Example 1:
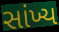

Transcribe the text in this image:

સાંખ્ય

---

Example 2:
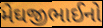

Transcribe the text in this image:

મેઘજીભાઈનો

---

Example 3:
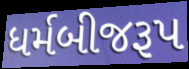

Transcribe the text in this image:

ધર્મબીજરૂપ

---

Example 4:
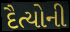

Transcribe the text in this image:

દૈત્યોની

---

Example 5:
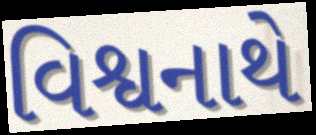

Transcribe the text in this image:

વિશ્વનાથે